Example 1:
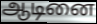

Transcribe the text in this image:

ஆடினை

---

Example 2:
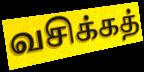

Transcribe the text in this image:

வசிக்கத்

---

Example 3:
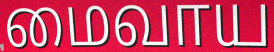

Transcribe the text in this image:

மைவாய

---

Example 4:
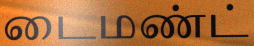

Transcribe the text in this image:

டைமண்ட்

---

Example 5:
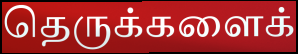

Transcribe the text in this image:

தெருக்களைக்